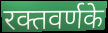
रक्तवर्णके